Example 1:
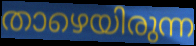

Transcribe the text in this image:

താഴെയിരുന്ന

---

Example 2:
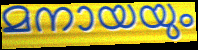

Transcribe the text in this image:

മനായയും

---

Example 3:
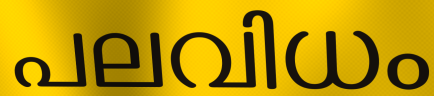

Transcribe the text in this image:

പലവിധം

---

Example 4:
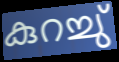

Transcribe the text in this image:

കുറച്ചു്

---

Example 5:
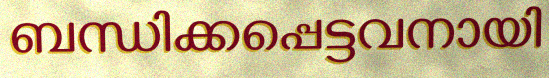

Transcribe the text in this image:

ബന്ധിക്കപ്പെട്ടവനായി